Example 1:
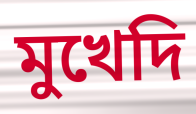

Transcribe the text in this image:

মুখেদি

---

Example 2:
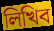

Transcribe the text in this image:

লিখিব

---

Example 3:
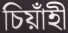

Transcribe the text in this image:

চিয়াঁহী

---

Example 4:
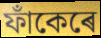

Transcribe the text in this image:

ফাঁকেৰে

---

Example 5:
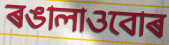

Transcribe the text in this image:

ৰঙালাওবোৰ